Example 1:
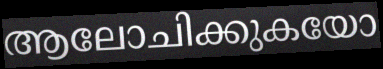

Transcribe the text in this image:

ആലോചിക്കുകയോ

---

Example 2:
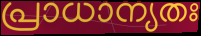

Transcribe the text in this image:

പ്രാധാന്യതഃ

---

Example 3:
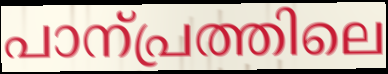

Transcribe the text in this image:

പാന്പ്രത്തിലെ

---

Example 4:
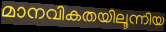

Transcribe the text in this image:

മാനവികതയിലൂന്നിയ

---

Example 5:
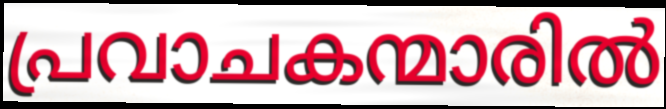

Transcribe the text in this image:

പ്രവാചകന്മാരിൽ